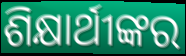
ଶିକ୍ଷାର୍ଥୀଙ୍କର